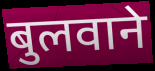
बुलवाने